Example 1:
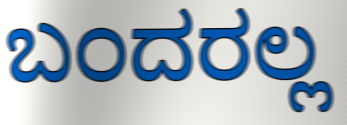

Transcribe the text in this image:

ಬಂದರಲ್ಲ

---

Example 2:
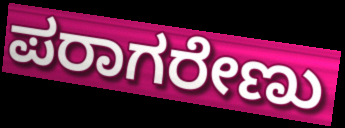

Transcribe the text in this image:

ಪರಾಗರೇಣು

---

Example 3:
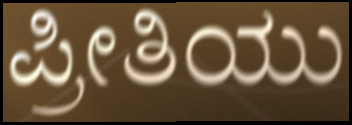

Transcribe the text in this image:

ಪ್ರೀತಿಯು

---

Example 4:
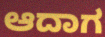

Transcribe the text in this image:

ಆದಾಗ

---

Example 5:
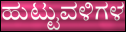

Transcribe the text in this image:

ಹುಟ್ಟುವಳಿಗಳ